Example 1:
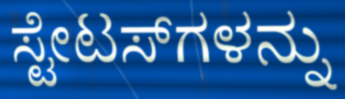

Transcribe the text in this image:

ಸ್ಟೇಟಸ್‌ಗಳನ್ನು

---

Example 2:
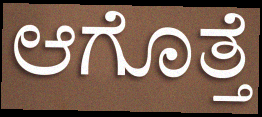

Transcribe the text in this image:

ಆಗೊತ್ತೆ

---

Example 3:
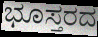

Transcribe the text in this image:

ಭೂಸ್ತರದ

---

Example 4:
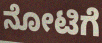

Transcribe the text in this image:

ನೋಟಿಗೆ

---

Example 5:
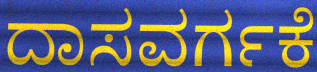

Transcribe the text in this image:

ದಾಸವರ್ಗಕೆ